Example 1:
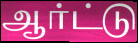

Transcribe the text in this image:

ஆர்ட்டு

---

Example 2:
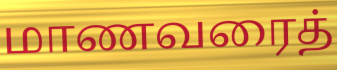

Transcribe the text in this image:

மாணவரைத்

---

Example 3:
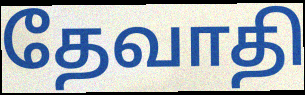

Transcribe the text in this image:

தேவாதி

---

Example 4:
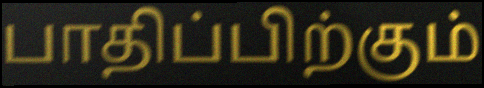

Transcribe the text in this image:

பாதிப்பிற்கும்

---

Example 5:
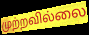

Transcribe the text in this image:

முற்றவில்லை